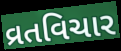
વ્રતવિચાર